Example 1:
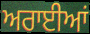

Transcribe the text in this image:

ਅਰਾਈਆਂ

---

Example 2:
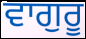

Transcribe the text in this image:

ਵਾਗੁਰੂ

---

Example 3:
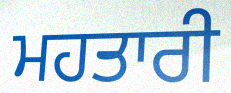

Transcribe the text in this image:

ਮਹਤਾਰੀ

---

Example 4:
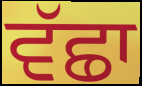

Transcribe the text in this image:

ਵੱਛਾ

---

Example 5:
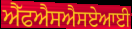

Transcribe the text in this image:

ਐੱਫਐਸਐਸਏਆਈ